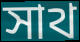
সাথ